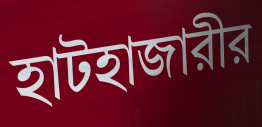
হাটহাজারীর